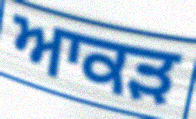
ਆਕੜ